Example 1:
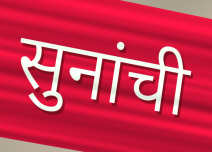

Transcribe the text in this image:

सुनांची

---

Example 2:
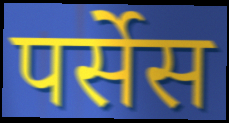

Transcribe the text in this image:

पर्सेस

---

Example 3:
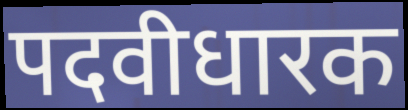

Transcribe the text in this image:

पदवीधारक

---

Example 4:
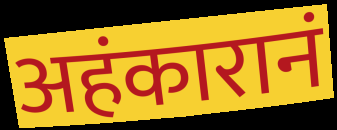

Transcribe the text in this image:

अहंकारानं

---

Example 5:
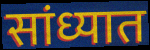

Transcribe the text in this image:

सांध्यात